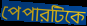
পেপারটিকে